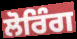
ਲੋਰਿੰਗ